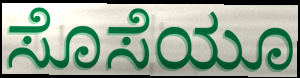
ಸೊಸೆಯೂ